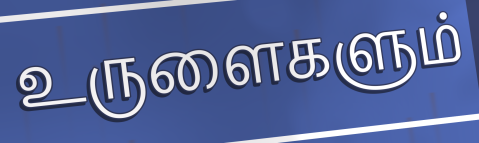
உருளைகளும்